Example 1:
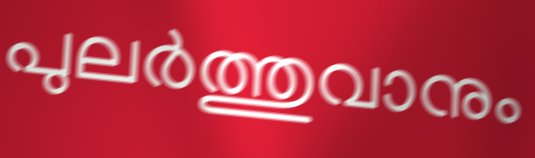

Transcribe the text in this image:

പുലർത്തുവാനും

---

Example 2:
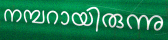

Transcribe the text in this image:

നമ്പറായിരുന്നു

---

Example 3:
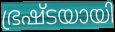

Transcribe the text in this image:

ഭ്രഷ്ടയായി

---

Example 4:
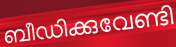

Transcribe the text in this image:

ബീഡിക്കുവേണ്ടി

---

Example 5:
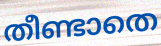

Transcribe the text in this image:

തീണ്ടാതെ